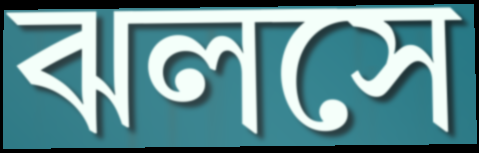
ঝলসে